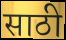
साठी